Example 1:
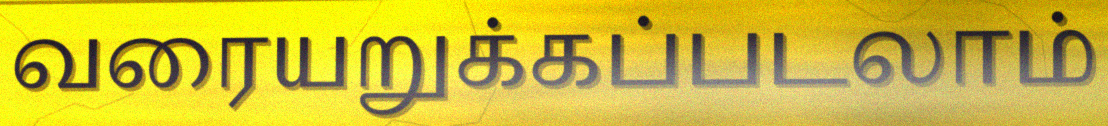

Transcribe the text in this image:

வரையறுக்கப்படலாம்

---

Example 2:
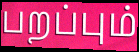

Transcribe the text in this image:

பறப்பும்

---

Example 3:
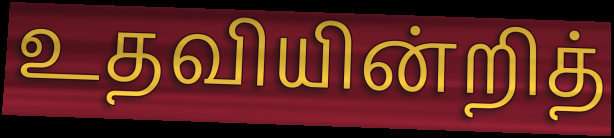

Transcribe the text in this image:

உதவியின்றித்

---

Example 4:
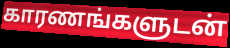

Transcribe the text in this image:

காரணங்களுடன்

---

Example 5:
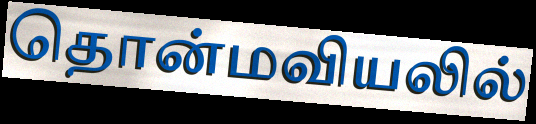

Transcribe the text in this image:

தொன்மவியலில்